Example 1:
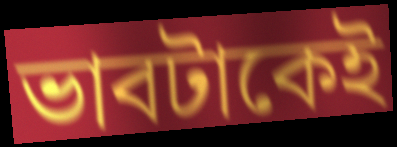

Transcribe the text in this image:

ভাবটাকেই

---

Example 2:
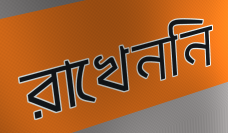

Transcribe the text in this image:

রাখেননি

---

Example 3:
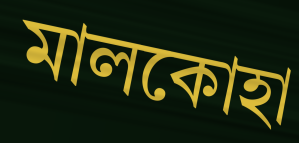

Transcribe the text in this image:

মালকোহা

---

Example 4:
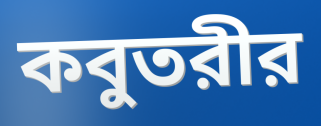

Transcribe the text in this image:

কবুতরীর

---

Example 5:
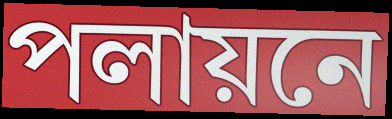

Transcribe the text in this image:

পলায়নে